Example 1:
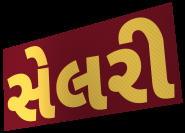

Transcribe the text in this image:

સેલરી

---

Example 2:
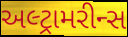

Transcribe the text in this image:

અલ્ટ્રામરીન્સ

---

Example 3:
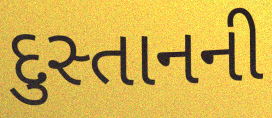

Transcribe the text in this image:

દુસ્તાનની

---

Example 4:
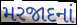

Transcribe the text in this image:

મરજાદનાં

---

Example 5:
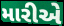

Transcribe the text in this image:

મારીએ